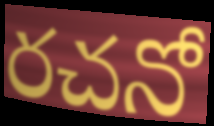
రచనో